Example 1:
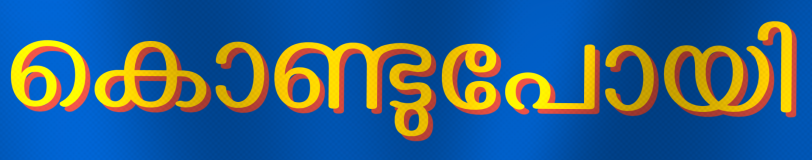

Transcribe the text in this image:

കൊണ്ടുപോയി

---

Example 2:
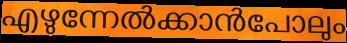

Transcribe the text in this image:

എഴുന്നേൽക്കാൻപോലും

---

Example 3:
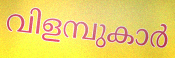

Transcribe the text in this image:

വിളമ്പുകാർ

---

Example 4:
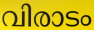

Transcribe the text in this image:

വിരാടം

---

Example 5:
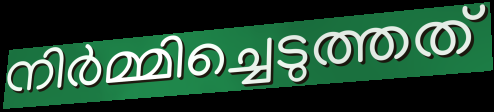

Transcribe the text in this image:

നിർമ്മിച്ചെടുത്തത്